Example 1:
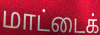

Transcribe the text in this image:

மாட்டைக்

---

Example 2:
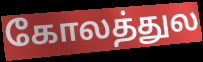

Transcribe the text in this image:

கோலத்துல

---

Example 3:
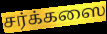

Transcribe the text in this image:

சர்க்கஸை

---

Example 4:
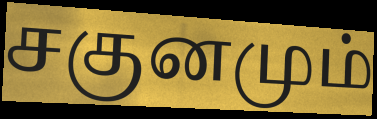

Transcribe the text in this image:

சகுனமும்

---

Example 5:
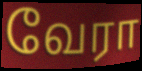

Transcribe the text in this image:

வேரா